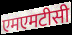
एमएमटीसी